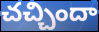
చచ్చిందా